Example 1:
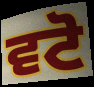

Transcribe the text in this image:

ਵਟੋ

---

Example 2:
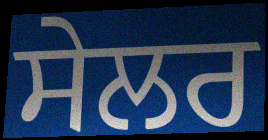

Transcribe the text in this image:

ਸੇਲਰ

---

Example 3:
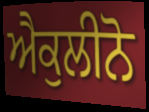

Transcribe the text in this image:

ਐਕੁਲੀਨੋ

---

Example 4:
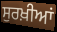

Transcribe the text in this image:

ਸੁਰਖ਼ੀਆਂ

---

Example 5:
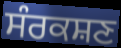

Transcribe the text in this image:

ਸੰਰਕਸ਼ਣ